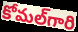
కోమల్‌గారి